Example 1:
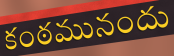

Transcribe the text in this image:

కంఠమునందు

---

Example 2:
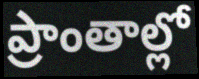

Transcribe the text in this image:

ప్రాంతాల్లో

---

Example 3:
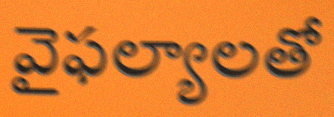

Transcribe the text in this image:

వైఫల్యాలతో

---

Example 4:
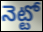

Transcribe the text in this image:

నెట్టో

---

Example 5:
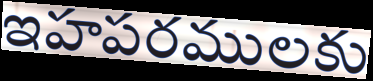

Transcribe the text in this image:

ఇహపరములకు